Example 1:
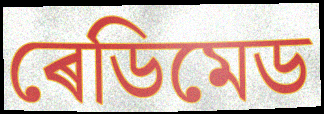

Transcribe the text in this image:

ৰেডিমেড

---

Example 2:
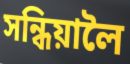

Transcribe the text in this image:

সন্ধিয়ালৈ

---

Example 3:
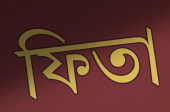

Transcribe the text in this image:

ফিতা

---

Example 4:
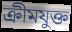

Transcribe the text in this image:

ক্ৰীমযুক্ত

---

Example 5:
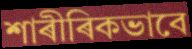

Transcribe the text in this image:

শাৰীৰিকভাবে